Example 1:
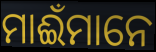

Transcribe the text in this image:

ମାଈଁମାନେ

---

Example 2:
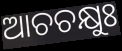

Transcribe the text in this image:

ଆଚଚକ୍ଷୁଃ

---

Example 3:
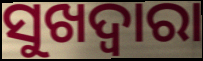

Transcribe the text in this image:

ସୁଖଦ୍ଵାରା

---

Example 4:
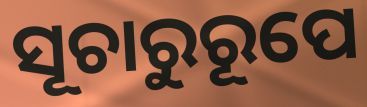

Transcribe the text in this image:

ସୂଚାରୁରୂପେ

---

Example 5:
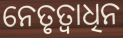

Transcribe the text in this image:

ନେତୃତ୍ୱାଧିନ